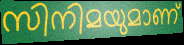
സിനിമയുമാണ്